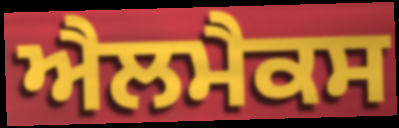
ਐਲਮੈਕਸ